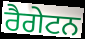
ਰੈਗੇਟਨ